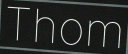
Thom